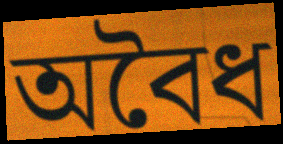
অবৈধ